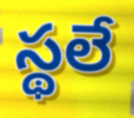
స్థలే